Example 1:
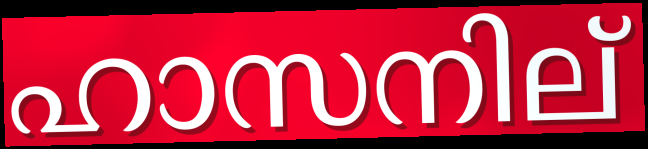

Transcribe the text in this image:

ഹാസനില്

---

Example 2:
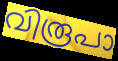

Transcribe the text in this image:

വിരൂപാ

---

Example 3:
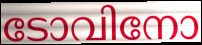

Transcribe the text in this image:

ടോവിനോ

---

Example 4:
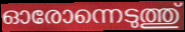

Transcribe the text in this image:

ഓരോന്നെടുത്തു്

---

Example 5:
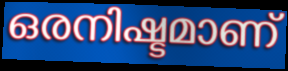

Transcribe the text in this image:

ഒരനിഷ്ടമാണ്